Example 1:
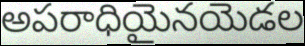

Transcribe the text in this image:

అపరాధియైనయెడల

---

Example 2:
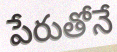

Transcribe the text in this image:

పేరుతోనే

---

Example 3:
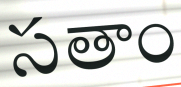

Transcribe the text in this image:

సతాం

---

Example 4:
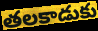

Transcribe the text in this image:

తలకాడుకు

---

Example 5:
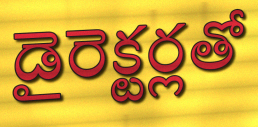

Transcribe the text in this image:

డైరెక్టర్లతో